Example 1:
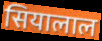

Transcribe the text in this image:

सियालाल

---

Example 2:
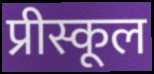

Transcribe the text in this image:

प्रीस्कूल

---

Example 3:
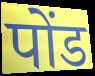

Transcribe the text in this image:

पोंड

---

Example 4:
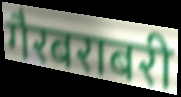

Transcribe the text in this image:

गैरबराबरी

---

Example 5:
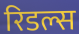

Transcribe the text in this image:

रिडल्स